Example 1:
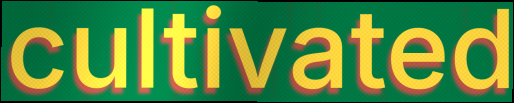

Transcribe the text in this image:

cultivated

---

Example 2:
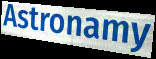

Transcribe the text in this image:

Astronamy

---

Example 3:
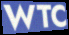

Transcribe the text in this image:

WTC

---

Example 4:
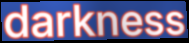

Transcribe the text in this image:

darkness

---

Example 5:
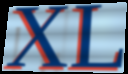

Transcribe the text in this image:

XL